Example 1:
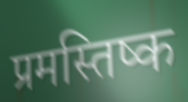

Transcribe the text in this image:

प्रमस्तिष्क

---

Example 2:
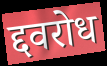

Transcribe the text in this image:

द्दवरोध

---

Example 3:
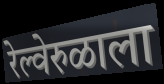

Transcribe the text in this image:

रेल्वेरुळाला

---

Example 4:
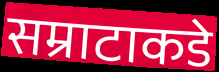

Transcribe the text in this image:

सम्राटाकडे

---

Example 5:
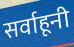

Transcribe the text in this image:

सर्वाहूनी